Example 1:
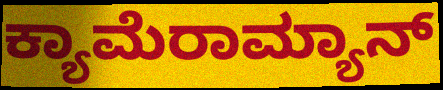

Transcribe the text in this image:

ಕ್ಯಾಮೆರಾಮ್ಯಾನ್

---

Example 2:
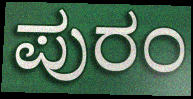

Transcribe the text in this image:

ಪುರಂ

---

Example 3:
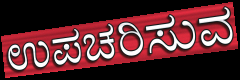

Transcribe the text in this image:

ಉಪಚರಿಸುವ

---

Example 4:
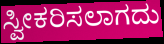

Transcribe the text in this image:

ಸ್ವೀಕರಿಸಲಾಗದು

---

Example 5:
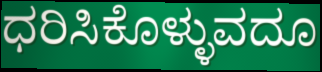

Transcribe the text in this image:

ಧರಿಸಿಕೊಳ್ಳುವದೂ